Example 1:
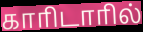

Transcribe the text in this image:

காரிடாரில்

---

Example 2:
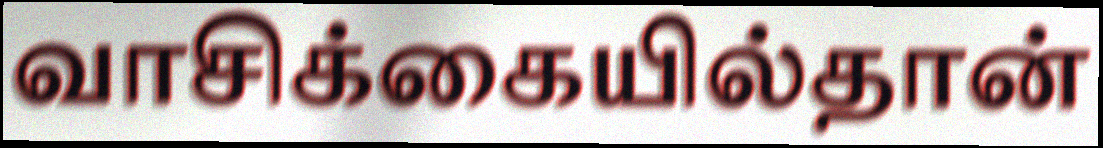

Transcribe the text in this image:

வாசிக்கையில்தான்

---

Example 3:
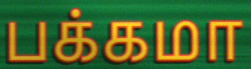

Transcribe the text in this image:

பக்கமா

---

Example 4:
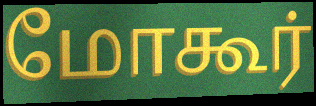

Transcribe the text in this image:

மோகூர்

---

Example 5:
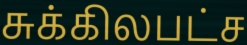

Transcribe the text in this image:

சுக்கிலபட்ச